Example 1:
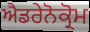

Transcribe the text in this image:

ਐਡਰੇਨੋਕ੍ਰੋਮ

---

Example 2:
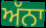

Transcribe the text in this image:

ਅੱਨਾ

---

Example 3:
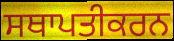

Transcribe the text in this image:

ਸਥਾਪਤੀਕਰਨ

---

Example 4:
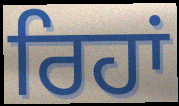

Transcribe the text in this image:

ਰਿਹਾਂ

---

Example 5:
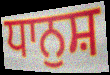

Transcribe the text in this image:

ਧਾਨੁਸ਼